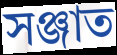
সঞ্জাত